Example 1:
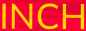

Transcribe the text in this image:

INCH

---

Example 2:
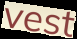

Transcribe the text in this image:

vest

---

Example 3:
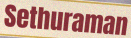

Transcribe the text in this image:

Sethuraman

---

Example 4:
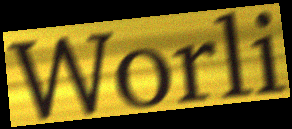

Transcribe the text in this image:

Worli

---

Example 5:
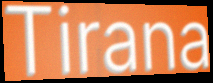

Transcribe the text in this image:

Tirana